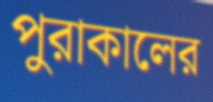
পুরাকালের